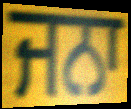
ਜਨਾ